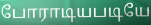
போராடியபடியே